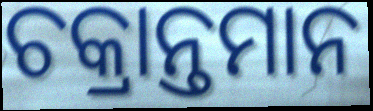
ଚକ୍ରାନ୍ତମାନ